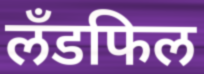
लँडफिल